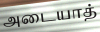
அடையாத்